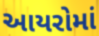
આયરોમાં